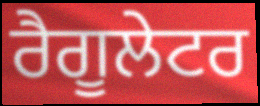
ਰੈਗੂਲੇਟਰ